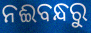
ନଈବନ୍ଧରୁ